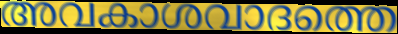
അവകാശവാദത്തെ